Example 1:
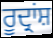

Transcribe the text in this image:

ਰੂਦ੍ਰਾਂਸ਼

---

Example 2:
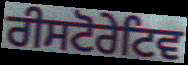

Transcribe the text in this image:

ਰੀਸਟੋਰੇਟਿਵ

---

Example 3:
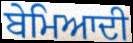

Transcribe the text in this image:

ਬੇਮਿਆਦੀ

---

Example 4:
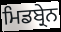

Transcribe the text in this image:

ਮਿਡਬ੍ਰੇਨ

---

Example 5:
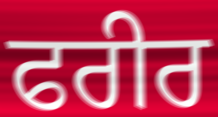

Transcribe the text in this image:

ਫਰੀਰ